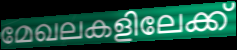
മേഖലകളിലേക്ക്